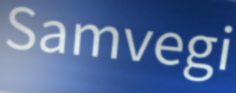
Samvegi